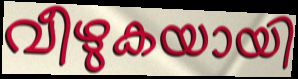
വീഴുകയായി